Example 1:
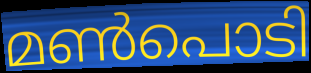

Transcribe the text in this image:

മൺപൊടി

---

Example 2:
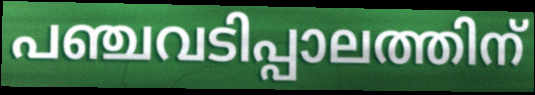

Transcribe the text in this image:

പഞ്ചവടിപ്പാലത്തിന്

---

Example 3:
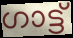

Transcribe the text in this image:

ഗാട്ട്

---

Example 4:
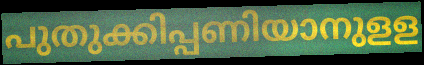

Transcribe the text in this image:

പുതുക്കിപ്പണിയാനുളള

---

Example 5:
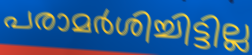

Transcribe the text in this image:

പരാമർശിച്ചിട്ടില്ല